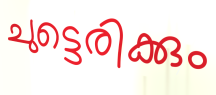
ചുട്ടെരിക്കും